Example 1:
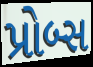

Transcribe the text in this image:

પ્રોબ્સ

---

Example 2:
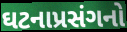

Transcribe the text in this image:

ઘટનાપ્રસંગનો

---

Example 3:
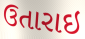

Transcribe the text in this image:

ઉતારાઇ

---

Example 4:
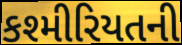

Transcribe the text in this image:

કશ્મીરિયતની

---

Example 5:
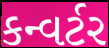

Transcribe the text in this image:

કન્વર્ટર